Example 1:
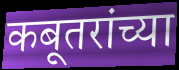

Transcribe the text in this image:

कबूतरांच्या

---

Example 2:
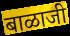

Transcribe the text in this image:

बाळाजी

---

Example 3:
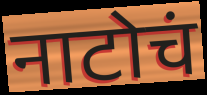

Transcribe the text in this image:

नाटोचं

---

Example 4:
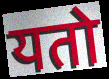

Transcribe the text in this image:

यतो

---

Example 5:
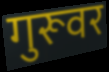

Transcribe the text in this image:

गुरूवर